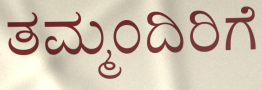
ತಮ್ಮಂದಿರಿಗೆ